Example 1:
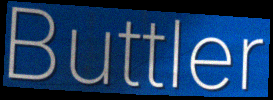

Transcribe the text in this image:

Buttler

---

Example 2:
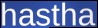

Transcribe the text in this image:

hastha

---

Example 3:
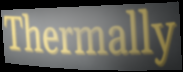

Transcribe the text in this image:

Thermally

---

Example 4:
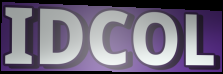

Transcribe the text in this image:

IDCOL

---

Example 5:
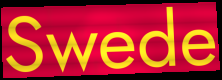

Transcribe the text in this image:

Swede